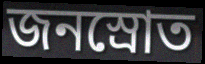
জনস্রোত